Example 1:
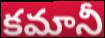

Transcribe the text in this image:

కమానీ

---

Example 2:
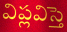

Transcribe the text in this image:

విప్లవిస్తె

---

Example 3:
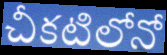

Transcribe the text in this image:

చీకటిలోనో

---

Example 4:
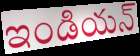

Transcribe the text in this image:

ఇండియన్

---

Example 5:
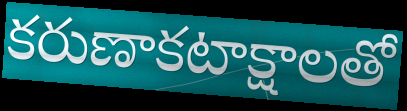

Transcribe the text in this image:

కరుణాకటాక్షాలతో